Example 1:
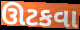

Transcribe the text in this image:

ઊટકવા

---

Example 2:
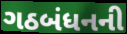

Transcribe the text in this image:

ગઠબંધનની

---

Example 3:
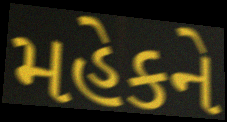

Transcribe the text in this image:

મહેકને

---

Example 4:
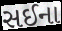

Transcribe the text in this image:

સઈના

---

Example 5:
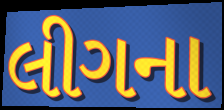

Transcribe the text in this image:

લીગના